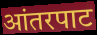
आंतरपाट